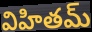
విహితమ్